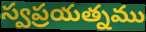
స్వప్రయత్నము